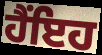
ਹੈਂਇਹ